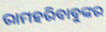
ରାମହରିବାବୁଙ୍କର